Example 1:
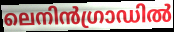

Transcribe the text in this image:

ലെനിൻഗ്രാഡിൽ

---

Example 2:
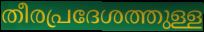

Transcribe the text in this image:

തീരപ്രദേശത്തുള്ള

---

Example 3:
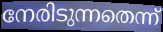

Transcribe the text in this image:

നേരിടുന്നതെന്ന്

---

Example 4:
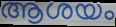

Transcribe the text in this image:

ആശയം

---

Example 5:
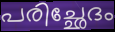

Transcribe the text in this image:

പരിച്ഛേദം